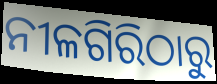
ନୀଳଗିରିଠାରୁ